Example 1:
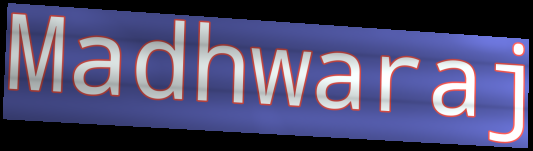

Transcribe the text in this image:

Madhwaraj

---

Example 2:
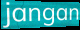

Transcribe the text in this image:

jangan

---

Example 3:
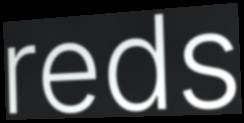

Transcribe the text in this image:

reds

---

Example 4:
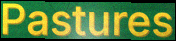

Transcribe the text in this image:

Pastures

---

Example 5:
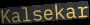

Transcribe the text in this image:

Kalsekar